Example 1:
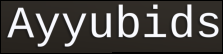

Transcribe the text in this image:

Ayyubids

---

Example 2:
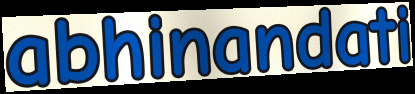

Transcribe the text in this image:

abhinandati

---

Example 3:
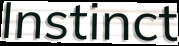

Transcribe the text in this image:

Instinct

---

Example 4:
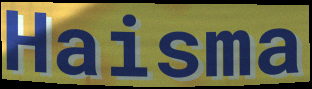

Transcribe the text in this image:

Haisma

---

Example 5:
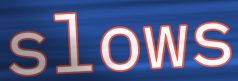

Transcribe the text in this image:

slows